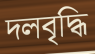
দলবৃদ্ধি